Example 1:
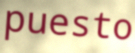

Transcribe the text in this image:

puesto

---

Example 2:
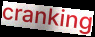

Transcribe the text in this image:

cranking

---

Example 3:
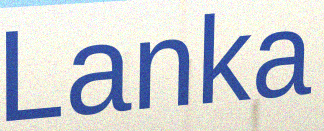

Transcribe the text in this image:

Lanka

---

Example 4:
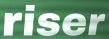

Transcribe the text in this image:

riser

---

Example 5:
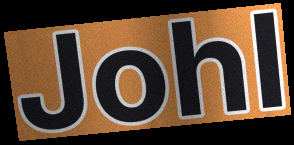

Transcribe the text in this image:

Johl